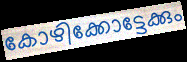
കോഴിക്കോട്ടേക്കും